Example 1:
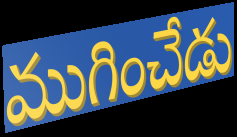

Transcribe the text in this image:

ముగించేడు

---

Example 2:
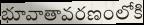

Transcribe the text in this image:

భూవాతావరణంలోకి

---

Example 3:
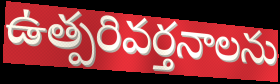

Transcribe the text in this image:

ఉత్పరివర్తనాలను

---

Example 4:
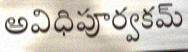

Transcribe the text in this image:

అవిధిపూర్వకమ్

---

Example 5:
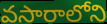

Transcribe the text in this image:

వసారాలోని